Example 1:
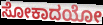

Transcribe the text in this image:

ಸೋಕಾದಯೋ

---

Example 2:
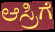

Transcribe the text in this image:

ಆಸ್ರಿಗೆ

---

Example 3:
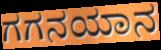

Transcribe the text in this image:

ಗಗನಯಾನ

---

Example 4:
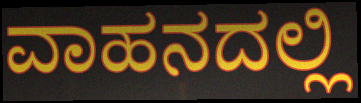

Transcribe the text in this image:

ವಾಹನದಲ್ಲಿ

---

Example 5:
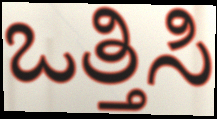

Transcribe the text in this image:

ಒತ್ತಿಸಿ